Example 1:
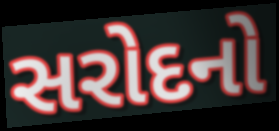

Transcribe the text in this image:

સરોદનો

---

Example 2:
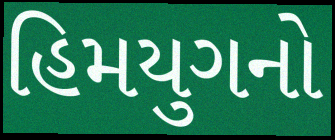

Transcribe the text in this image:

હિમયુગનો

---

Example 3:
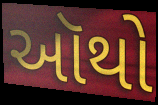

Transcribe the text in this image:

ઑથો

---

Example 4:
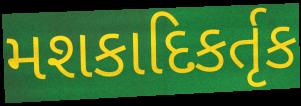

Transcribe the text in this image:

મશકાદિકર્તૃક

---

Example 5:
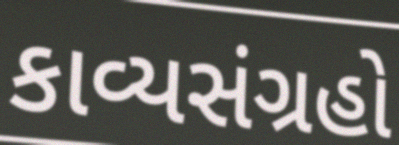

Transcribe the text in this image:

કાવ્યસંગ્રહો